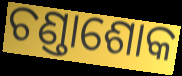
ଚଣ୍ଡାଶୋକ